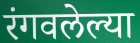
रंगवलेल्या